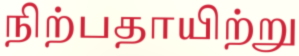
நிற்பதாயிற்று